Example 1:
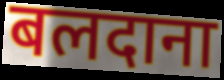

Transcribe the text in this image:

बलदाना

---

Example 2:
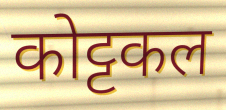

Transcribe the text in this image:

कोट्टकल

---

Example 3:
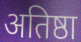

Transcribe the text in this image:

अतिष्ठा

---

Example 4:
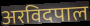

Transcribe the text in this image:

अरविदपाल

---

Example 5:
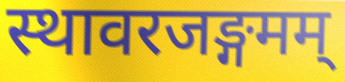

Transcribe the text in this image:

स्थावरजङ्गमम्